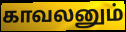
காவலனும்